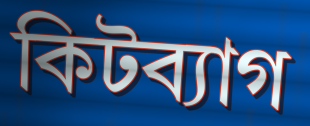
কিটব্যাগ